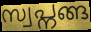
സ്വപ്നങ്ങ